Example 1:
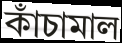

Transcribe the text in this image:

কাঁচামাল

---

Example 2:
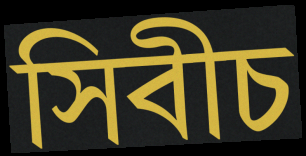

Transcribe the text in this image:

সিবীচ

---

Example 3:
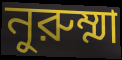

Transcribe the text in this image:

নুরুম্মা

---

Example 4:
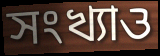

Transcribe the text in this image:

সংখ্যাও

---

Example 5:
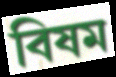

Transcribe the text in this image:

বিষম